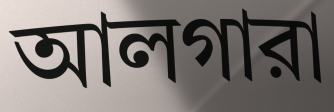
আলগারা